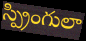
స్ప్రింగులా